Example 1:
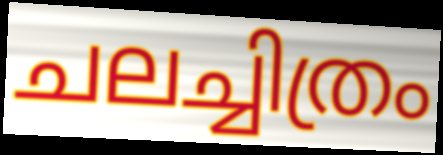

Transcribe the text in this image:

ചലച്ചിത്രം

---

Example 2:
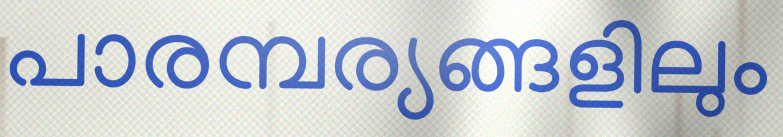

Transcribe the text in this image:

പാരമ്പര്യങ്ങളിലും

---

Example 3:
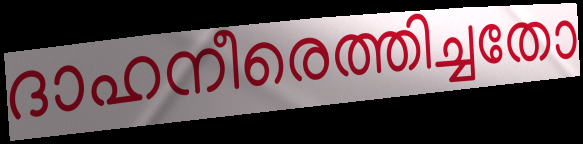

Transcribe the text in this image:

ദാഹനീരെത്തിച്ചതോ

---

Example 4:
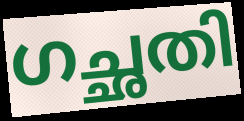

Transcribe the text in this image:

ഗച്ഛതി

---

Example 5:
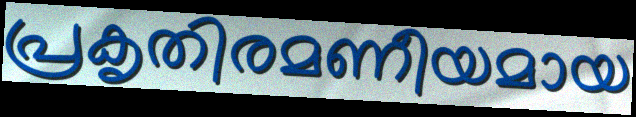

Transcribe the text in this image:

പ്രകൃതിരമണീയമായ